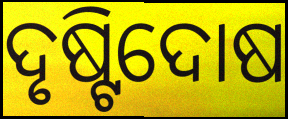
ଦୃଷ୍ଟିଦୋଷ